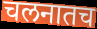
चलनातच